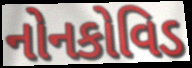
નોનકોવિડ